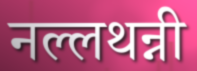
नल्लथन्नी